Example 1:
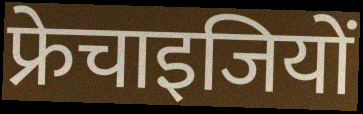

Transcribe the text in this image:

फ्रेचाइजियों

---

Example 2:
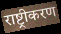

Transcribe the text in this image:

राष्ट्रीकरण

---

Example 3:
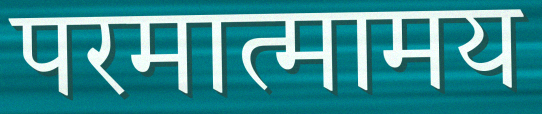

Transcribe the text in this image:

परमात्मामय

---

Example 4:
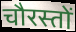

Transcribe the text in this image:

चौरस्तों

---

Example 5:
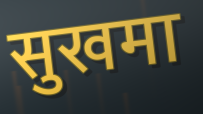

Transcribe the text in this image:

सुखमा